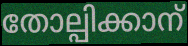
തോല്പിക്കാന്